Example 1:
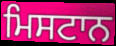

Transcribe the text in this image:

ਮਿਸਟਾਨ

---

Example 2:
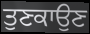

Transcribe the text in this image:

ਤੁਣਕਾਉਣ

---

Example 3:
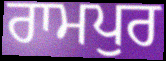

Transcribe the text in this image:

ਰਾਮਪੁਰ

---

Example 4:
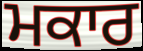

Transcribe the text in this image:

ਮਕਾਰ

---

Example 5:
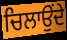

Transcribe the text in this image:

ਚਿਲਾਉਂਦੇ